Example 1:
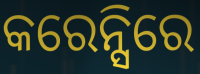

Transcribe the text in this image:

କରେନ୍ସିରେ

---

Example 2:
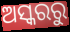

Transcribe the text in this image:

ଅସ୍କରରୁ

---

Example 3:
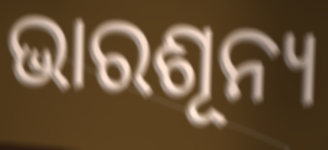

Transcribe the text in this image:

ଭାରଶୂନ୍ୟ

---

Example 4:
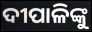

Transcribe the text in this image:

ଦୀପାଳିଙ୍କୁ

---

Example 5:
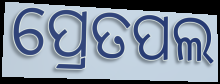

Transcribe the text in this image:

ପ୍ରେତପଲ